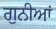
ਗੁਨੀਆਂ